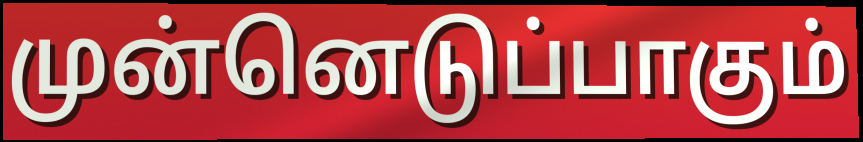
முன்னெடுப்பாகும்